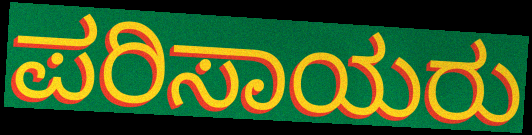
ಪರಿಸಾಯರು